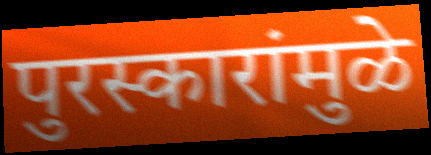
पुरस्कारांमुळे